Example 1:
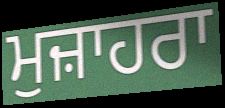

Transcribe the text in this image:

ਮੁਜ਼ਾਹਰਾ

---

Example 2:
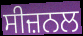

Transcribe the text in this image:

ਸੀਜ਼ਨਲ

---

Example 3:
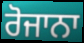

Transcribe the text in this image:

ਰੋਜਾਨਾ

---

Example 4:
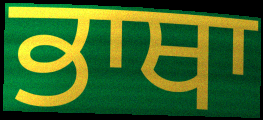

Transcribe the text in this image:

ਭਾਥਾ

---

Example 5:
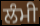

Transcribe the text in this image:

ਲੰਮੀ